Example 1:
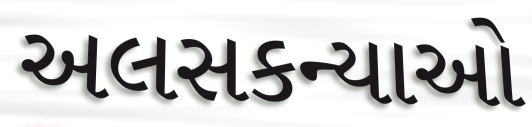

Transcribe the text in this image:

અલસકન્યાઓ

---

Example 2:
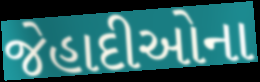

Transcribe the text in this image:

જેહાદીઓના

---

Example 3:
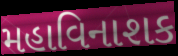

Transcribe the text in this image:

મહાવિનાશક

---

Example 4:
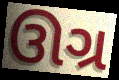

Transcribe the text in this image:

ઊગ્ર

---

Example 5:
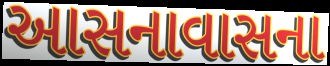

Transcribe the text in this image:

આસનાવાસના